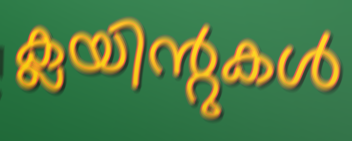
ക്ലയിന്റുകൾ